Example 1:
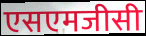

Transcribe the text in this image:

एसएमजीसी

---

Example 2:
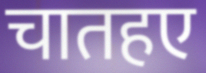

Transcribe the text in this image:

चातहए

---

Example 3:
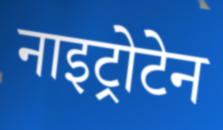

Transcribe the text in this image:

नाइट्रोटेन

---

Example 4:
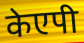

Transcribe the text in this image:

केएपी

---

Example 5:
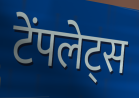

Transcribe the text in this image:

टेंपलेट्स